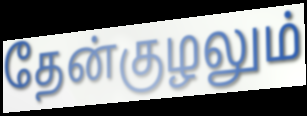
தேன்குழலும்